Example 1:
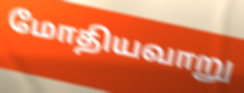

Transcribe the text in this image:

மோதியவாறு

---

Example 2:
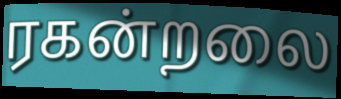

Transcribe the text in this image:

ரகன்றலை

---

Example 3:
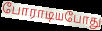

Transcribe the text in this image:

போராடியபோது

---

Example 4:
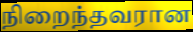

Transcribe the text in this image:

நிறைந்தவரான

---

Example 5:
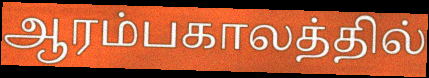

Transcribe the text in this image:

ஆரம்பகாலத்தில்